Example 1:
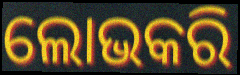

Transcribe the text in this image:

ଲୋଭକରି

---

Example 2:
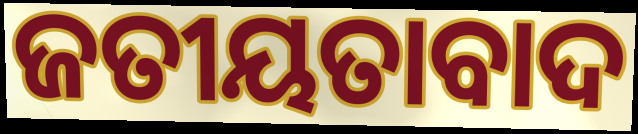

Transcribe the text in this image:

ଜତୀୟତାବାଦ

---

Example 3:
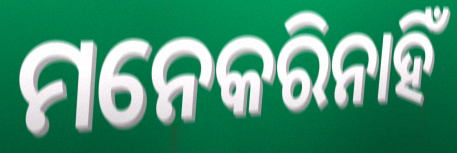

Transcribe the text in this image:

ମନେକରିନାହିଁ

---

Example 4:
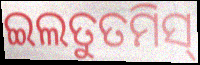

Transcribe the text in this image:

ଇଲତୁତମିସ୍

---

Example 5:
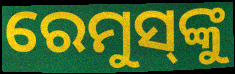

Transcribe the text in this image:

ରେମୁସ୍‌ଙ୍କୁ